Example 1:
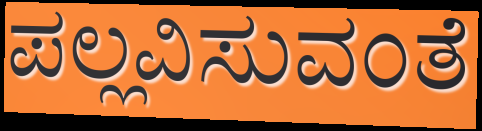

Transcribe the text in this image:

ಪಲ್ಲವಿಸುವಂತೆ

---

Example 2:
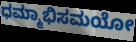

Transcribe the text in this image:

ಧಮ್ಮಾಭಿಸಮಯೋ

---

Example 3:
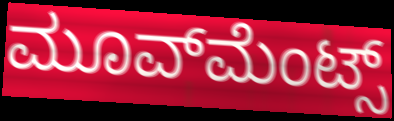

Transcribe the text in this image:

ಮೂವ್‍ಮೆಂಟ್ಸ್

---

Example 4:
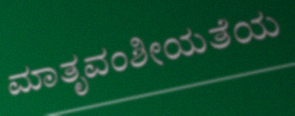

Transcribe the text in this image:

ಮಾತೃವಂಶೀಯತೆಯ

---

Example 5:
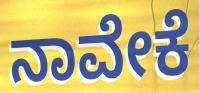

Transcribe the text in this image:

ನಾವೇಕೆ